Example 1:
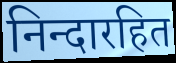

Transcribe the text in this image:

निन्दारहित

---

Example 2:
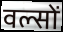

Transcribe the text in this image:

वल्सों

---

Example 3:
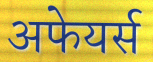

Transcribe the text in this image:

अफेयर्स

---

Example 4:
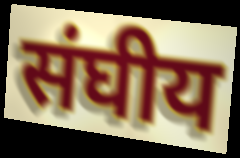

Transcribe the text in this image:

संघीय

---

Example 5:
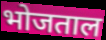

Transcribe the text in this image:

भोजताल